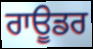
ਰਾਊਡਰ